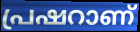
പ്രഷറാണ്